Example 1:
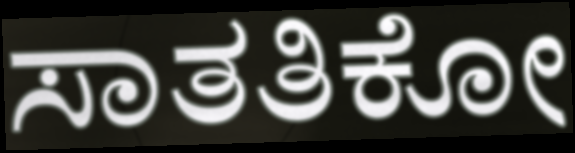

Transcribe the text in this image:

ಸಾತತಿಕೋ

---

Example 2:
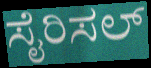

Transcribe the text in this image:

ಸೈರಿಸಲ್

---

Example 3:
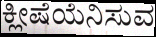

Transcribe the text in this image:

ಕ್ಲೀಷೆಯೆನಿಸುವ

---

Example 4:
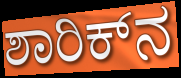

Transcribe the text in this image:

ಶಾರಿಕ್‌ನ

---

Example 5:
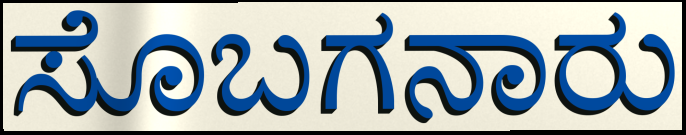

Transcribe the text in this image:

ಸೊಬಗನಾರು